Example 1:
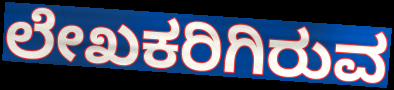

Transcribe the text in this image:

ಲೇಖಕರಿಗಿರುವ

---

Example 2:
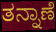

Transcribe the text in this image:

ತನ್ನಾಣೆ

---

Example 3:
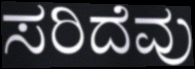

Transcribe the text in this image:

ಸರಿದೆವು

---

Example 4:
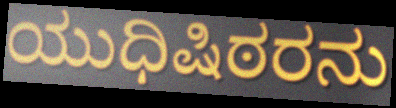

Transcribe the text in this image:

ಯುಧಿಷಿಠರನು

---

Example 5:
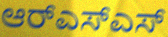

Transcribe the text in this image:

ಆರ್‌ಎಸ್ಎಸ್